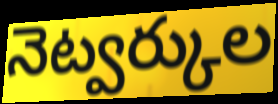
నెట్వర్కుల